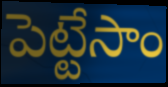
పెట్టేసాం